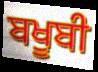
ਬਖੂਬੀ